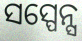
ସସ୍ପେନ୍ସ